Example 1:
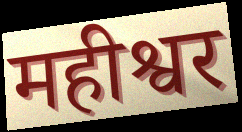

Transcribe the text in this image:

महीश्वर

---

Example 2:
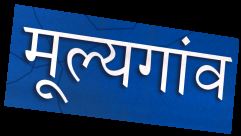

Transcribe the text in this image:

मूल्यगांव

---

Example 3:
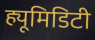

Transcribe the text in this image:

ह्यूमिडिटी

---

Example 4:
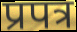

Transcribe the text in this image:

प्रपत्र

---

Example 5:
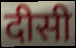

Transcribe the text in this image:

दीसी